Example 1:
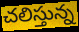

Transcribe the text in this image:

చలిస్తున్న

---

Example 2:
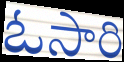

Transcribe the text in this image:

ఓసారి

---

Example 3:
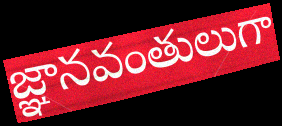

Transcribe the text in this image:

జ్ఞానవంతులుగా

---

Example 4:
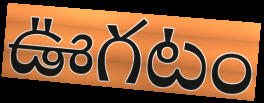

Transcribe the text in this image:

ఊగటం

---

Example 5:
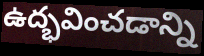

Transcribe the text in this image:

ఉద్భవించడాన్ని